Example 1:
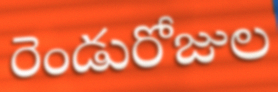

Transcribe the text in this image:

రెండురోజుల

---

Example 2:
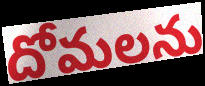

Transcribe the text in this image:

దోమలను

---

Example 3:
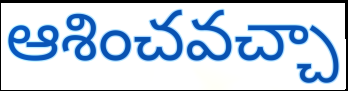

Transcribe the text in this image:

ఆశించవచ్చా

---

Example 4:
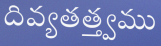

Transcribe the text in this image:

దివ్యతత్త్వము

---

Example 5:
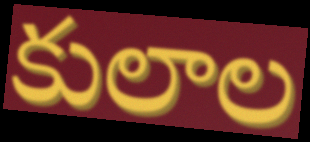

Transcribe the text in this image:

కులాల